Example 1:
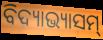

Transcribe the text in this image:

ବିଦ୍ୟାଭ୍ୟାସମ୍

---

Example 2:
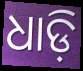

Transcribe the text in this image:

ଧାଡ଼ି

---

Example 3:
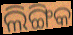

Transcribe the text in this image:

ଲିଙ୍ଗିକ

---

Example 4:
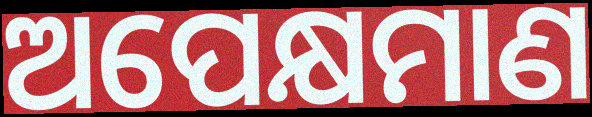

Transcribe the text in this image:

ଅପେକ୍ଷମାଣ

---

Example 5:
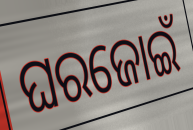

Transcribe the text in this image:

ଘରଜୋଇଁ